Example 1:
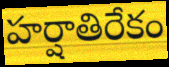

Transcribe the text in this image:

హర్షాతిరేకం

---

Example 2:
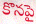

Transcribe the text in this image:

కొనపై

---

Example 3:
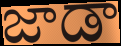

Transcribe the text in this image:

జాడా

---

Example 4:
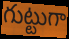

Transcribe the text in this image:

గుట్టుగా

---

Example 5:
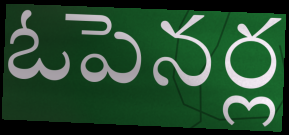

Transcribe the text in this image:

ఓపెనర్ల